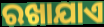
ରଖାଯାଏ